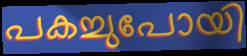
പകച്ചുപോയി